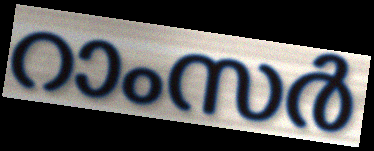
റാംസർ